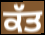
ਕੱਤ